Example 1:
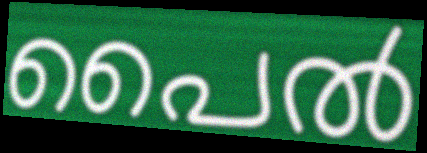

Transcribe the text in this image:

പൈൽ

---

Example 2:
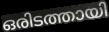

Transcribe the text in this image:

ഒരിടത്തായി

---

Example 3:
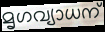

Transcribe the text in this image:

മൃഗവ്യാധന്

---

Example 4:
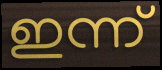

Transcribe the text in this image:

ഇന്ന്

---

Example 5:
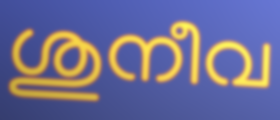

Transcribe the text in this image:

ശുനീവ